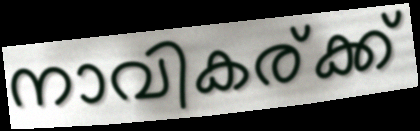
നാവികര്ക്ക്